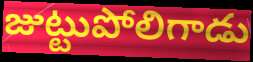
జుట్టుపోలిగాడు